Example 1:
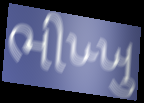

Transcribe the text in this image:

ભીખ્ખુ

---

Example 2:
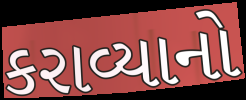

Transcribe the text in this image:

કરાવ્યાનો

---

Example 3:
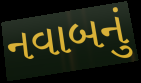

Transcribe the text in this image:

નવાબનું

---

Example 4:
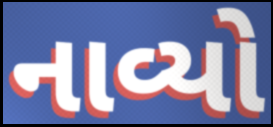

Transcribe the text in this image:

નાવ્યો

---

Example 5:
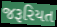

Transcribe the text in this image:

જરૂરિયત